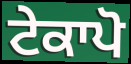
ਟੇਕਾਪੋ